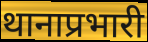
थानाप्रभारी